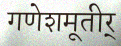
गणेशमूतीर्